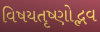
વિષયતૃષ્ણોદ્ભવ